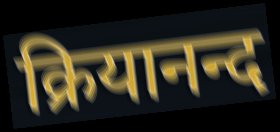
क्रियानन्द